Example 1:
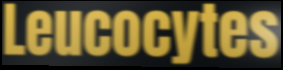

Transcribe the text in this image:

Leucocytes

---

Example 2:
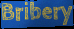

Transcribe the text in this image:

Bribery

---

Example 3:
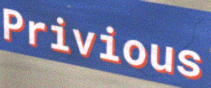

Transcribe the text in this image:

Privious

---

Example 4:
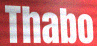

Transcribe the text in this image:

Thabo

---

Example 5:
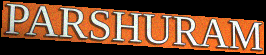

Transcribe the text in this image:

PARSHURAM